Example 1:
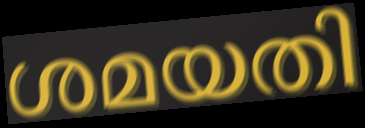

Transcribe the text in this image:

ശമയതി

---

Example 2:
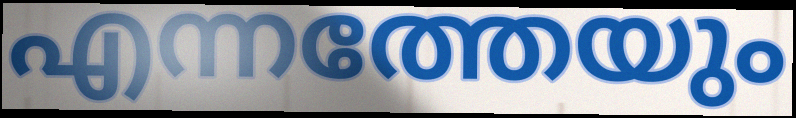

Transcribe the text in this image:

എന്നത്തേയും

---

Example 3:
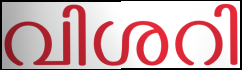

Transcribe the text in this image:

വിശറി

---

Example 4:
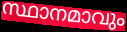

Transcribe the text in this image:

സ്ഥാനമാവും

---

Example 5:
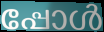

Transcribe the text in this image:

പ്പോൾ